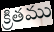
క్రితము